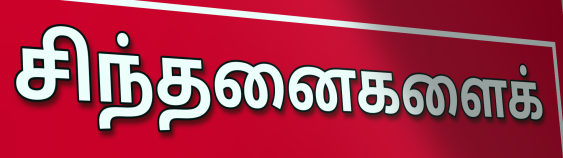
சிந்தனைகளைக்